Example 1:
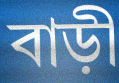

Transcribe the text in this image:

বাড়ী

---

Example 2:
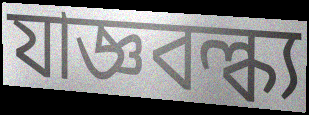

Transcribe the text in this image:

যাজ্ঞবল্ক্য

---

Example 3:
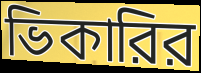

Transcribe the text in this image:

ভিকারির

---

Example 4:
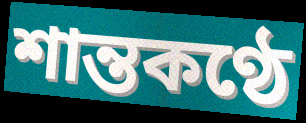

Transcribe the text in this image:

শান্তকণ্ঠে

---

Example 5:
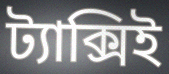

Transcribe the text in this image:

ট্যাক্সিই